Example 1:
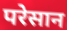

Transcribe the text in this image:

परेसान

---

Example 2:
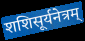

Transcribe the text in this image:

शशिसूर्यनेत्रम्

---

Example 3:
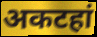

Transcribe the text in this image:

अकटहां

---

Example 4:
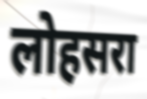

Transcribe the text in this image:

लोहसरा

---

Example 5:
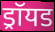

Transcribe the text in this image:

ड्रॉयड